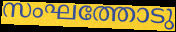
സംഘത്തോടു